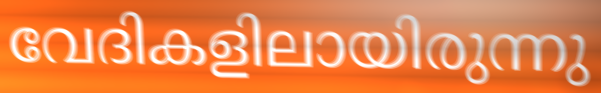
വേദികളിലായിരുന്നു